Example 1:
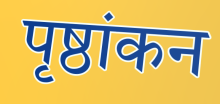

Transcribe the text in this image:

पृष्ठांकन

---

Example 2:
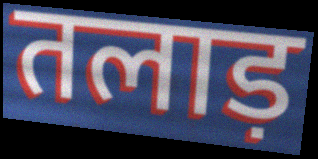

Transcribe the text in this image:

तलाड़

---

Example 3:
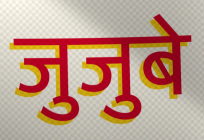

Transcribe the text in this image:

जुजुबे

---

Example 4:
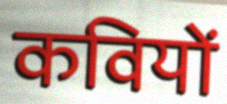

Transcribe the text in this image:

कवियों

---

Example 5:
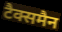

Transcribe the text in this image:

टैक्समैन